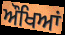
ਔਖਿਆਂ